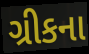
ગ્રીકના